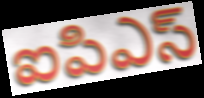
ఐపిఎస్